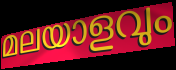
മലയാളവും